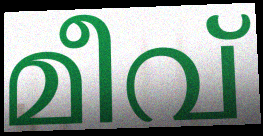
മീവ്